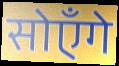
सोएँगे